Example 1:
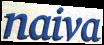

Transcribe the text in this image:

naiva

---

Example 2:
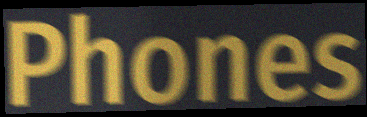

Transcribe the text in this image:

Phones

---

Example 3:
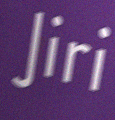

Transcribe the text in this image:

Jiri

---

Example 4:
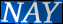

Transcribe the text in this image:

NAY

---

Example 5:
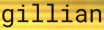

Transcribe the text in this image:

gillian